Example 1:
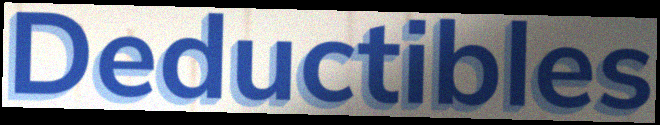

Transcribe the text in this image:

Deductibles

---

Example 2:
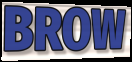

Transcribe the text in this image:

BROW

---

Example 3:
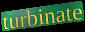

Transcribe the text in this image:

turbinate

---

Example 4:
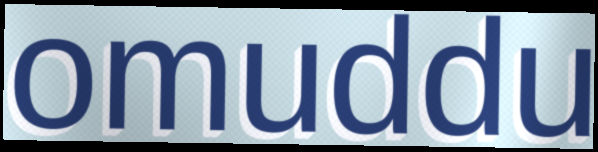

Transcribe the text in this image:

omuddu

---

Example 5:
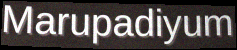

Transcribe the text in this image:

Marupadiyum